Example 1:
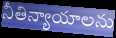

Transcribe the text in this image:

నీతిన్యాయాలను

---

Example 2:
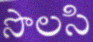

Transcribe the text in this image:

సొలసి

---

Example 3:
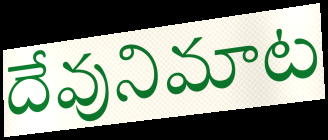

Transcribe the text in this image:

దేవునిమాట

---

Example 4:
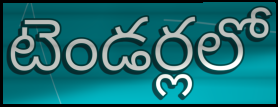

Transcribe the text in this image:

టెండర్లలో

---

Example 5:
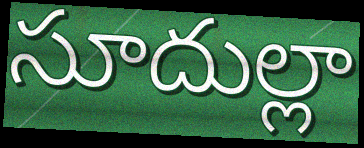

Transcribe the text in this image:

సూదుల్లా